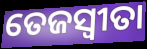
ତେଜସ୍ଵୀତା